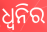
ଧ୍ୱନିର